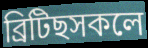
ব্ৰিটিছসকলে